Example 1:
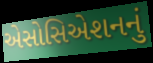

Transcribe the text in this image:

એસોસિએશનનું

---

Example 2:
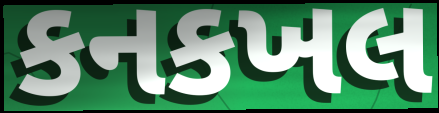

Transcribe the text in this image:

કનકખલ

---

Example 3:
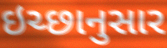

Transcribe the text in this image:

ઇચ્છાનુસાર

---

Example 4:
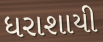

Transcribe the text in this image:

ધરાશાયી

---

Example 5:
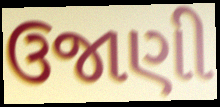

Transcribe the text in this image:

ઉજાણી